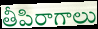
తీపిరాగాలు